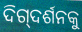
ଦିଗ୍‌ଦର୍ଶନକୁ